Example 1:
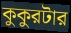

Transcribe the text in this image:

কুকুরটার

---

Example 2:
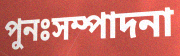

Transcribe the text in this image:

পুনঃসম্পাদনা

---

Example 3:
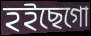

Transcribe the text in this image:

হইছেগো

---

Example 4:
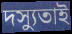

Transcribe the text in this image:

দস্যুতাই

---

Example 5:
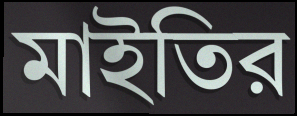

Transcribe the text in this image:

মাইতির